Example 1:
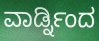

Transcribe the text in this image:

ವಾರ್ಡ್ನಿಂದ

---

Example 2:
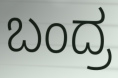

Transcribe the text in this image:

ಬಂದ್ರ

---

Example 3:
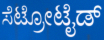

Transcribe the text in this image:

ಸೆಟ್ರೋಟೈಡ್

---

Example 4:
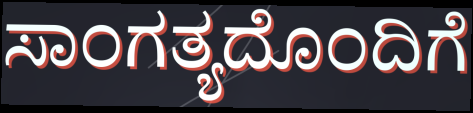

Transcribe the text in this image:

ಸಾಂಗತ್ಯದೊಂದಿಗೆ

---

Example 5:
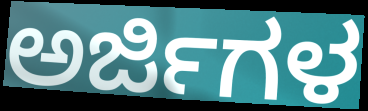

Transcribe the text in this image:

ಅರ್ಜಿಗಳ